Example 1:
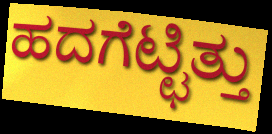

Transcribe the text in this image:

ಹದಗೆಟ್ಟಿತ್ತು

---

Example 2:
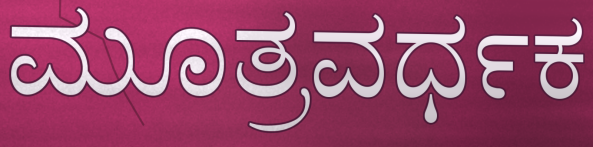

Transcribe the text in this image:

ಮೂತ್ರವರ್ಧಕ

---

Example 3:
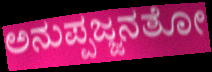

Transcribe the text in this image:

ಅನುಪ್ಪಜ್ಜನತೋ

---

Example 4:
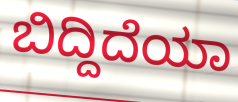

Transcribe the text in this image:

ಬಿದ್ದಿದೆಯಾ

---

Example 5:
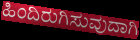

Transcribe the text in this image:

ಹಿಂದಿರುಗಿಸುವುದಾಗಿ